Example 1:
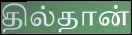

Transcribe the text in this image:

தில்தான்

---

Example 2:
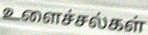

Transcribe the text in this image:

உளைச்சல்கள்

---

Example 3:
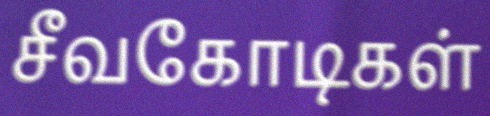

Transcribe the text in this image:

சீவகோடிகள்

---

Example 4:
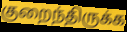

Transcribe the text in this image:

குறைந்திருக்க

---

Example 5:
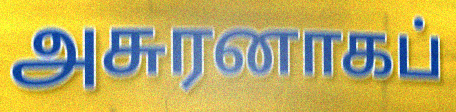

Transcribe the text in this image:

அசுரனாகப்